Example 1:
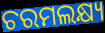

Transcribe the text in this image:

ଚରମଲକ୍ଷ୍ୟ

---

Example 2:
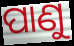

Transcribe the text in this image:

ପାଣୁ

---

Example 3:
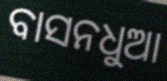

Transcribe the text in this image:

ବାସନଧୁଆ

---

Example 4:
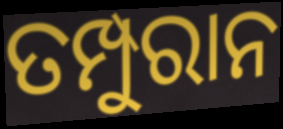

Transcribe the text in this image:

ତମ୍ପୁରାନ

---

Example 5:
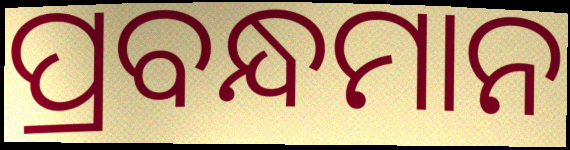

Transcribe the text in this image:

ପ୍ରବନ୍ଧମାନ